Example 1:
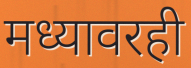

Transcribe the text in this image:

मध्यावरही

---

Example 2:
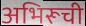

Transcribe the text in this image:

अभिरूची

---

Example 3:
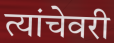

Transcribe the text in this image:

त्यांचेवरी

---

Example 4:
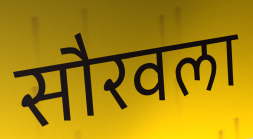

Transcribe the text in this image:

सौरवला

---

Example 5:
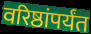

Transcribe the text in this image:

वरिष्ठांपर्यंत